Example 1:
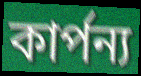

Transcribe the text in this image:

কার্পন্য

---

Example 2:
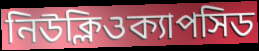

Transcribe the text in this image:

নিউক্লিওক্যাপসিড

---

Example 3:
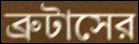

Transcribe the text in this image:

ব্রুটাসের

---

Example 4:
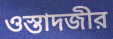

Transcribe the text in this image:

ওস্তাদজীর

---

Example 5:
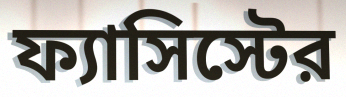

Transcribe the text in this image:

ফ্যাসিস্টের